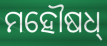
ମହୌଷଧ୍